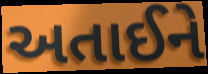
અતાઈને